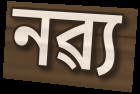
নৱ্য